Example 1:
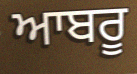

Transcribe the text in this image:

ਆਬਰੂ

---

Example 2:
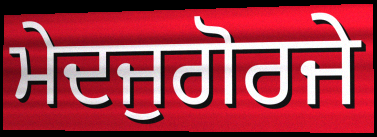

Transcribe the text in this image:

ਮੇਦਜੁਗੋਰਜੇ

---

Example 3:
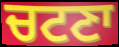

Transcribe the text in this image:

ਚਟਣਾ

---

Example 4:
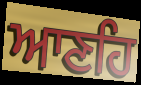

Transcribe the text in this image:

ਆਣਹਿ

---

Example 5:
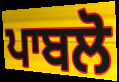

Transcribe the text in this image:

ਪਾਬਲੋ